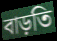
বাড়তি